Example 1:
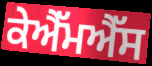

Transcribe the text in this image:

ਕੇਐੱਮਐੱਸ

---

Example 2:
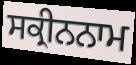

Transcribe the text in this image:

ਸਕ੍ਰੀਨਨਾਮ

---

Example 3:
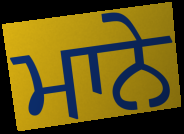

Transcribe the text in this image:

ਮਾਨੇ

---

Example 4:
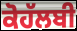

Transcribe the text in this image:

ਕੋਹੱਲਬੀ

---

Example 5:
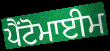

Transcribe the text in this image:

ਪੈਂਟੋਮਾਈਮ